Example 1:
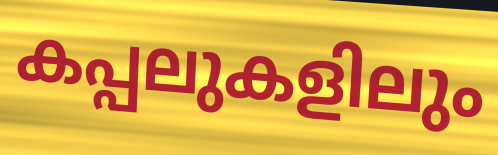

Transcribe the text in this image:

കപ്പലുകളിലും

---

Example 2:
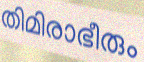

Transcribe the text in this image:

തിമിരാഭീരും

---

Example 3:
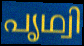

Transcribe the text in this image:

പൃഥ്വി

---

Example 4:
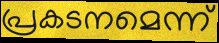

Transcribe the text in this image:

പ്രകടനമെന്ന്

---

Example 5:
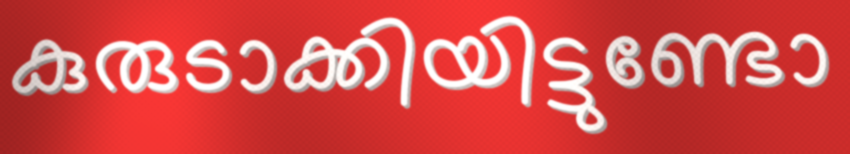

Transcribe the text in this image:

കുരുടാക്കിയിട്ടുണ്ടോ